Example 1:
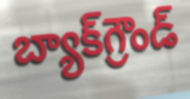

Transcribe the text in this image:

బ్యాక్‌గ్రౌండ్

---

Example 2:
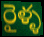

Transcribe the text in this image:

రైళ్ళ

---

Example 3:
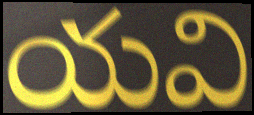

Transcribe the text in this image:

యవి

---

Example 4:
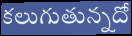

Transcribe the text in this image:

కలుగుతున్నదో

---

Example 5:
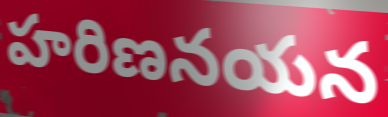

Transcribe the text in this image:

హరిణనయన